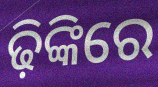
ଢ଼ିଙ୍କିରେ